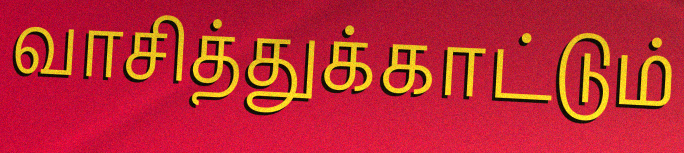
வாசித்துக்காட்டும்